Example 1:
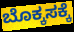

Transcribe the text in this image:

ಬೊಕ್ಕಸಕ್ಕೆ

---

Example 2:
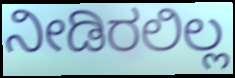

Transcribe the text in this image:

ನೀಡಿರಲಿಲ್ಲ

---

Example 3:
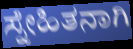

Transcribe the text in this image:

ಸ್ನೇಹಿತನಾಗಿ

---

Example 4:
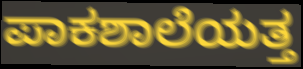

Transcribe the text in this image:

ಪಾಕಶಾಲೆಯತ್ತ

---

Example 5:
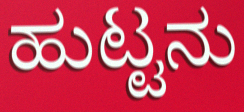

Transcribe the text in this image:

ಹುಟ್ಟನು